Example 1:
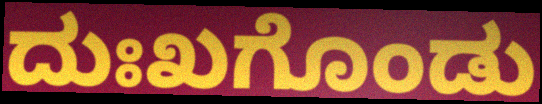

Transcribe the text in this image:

ದುಃಖಗೊಂಡು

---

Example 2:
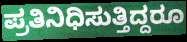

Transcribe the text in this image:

ಪ್ರತಿನಿಧಿಸುತ್ತಿದ್ದರೂ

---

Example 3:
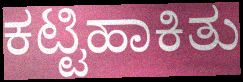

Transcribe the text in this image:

ಕಟ್ಟಿಹಾಕಿತು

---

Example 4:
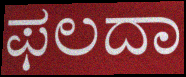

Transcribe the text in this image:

ಫಲದಾ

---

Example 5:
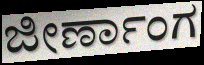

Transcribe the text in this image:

ಜೀರ್ಣಾಂಗ